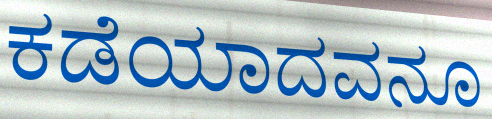
ಕಡೆಯಾದವನೂ